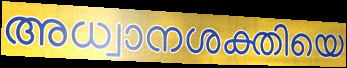
അധ്വാനശക്തിയെ